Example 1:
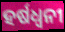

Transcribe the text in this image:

ହର୍ଷଧ୍ୱନୀ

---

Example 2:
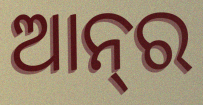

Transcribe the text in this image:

ଆନ୍‌ର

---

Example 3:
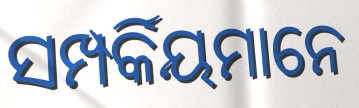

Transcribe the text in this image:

ସମ୍ପର୍କିୟମାନେ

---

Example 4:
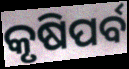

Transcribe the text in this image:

କୃଷିପର୍ବ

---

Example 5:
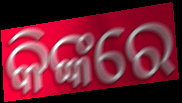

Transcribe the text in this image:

କିଙ୍କରେ